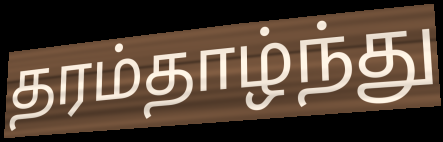
தரம்தாழ்ந்து